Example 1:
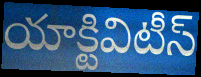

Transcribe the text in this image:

యాక్టివిటీస్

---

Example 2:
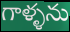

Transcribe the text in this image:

గాళ్ళను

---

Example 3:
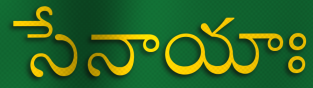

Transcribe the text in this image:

సేనాయాః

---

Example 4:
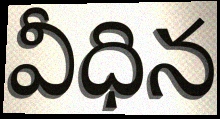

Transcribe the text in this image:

వీధిన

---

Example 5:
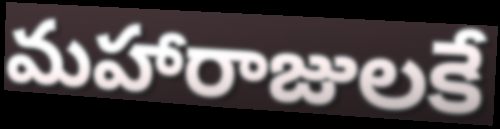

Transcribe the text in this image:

మహారాజులకే